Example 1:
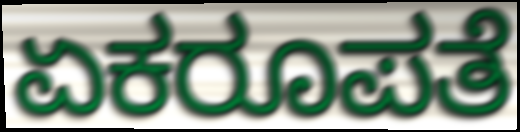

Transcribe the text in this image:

ಏಕರೂಪತೆ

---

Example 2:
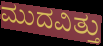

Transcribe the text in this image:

ಮುದವಿತ್ತು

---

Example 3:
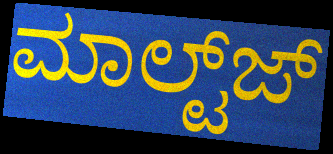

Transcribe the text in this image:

ಮಾಲ್ಟ್‌ಜ್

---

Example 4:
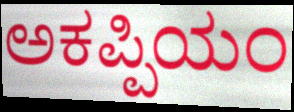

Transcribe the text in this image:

ಅಕಪ್ಪಿಯಂ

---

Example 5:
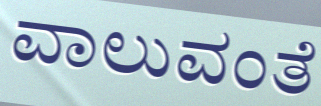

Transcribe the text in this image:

ವಾಲುವಂತೆ